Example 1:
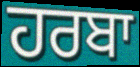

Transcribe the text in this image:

ਹਰਬਾ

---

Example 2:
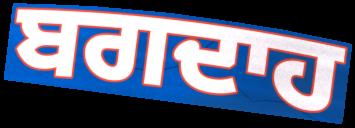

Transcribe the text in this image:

ਬਗਦਾਹ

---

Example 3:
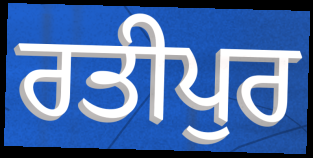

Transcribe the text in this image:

ਰਤੀਪੁਰ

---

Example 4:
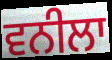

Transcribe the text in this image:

ਵਨੀਲਾ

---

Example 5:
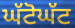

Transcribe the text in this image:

ਘੱਟੋਘੱਟ